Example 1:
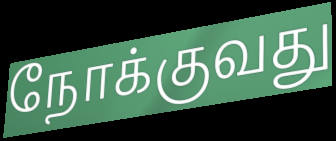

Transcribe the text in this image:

நோக்குவது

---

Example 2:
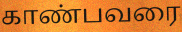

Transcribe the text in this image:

காண்பவரை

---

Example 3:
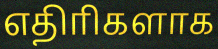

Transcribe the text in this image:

எதிரிகளாக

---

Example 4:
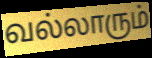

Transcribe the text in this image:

வல்லாரும்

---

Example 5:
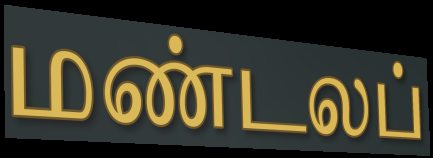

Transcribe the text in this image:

மண்டலப்